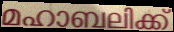
മഹാബലിക്ക്